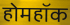
होमहॉक